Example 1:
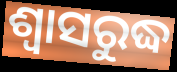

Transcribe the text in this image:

ଶ୍ୱାସରୁଦ୍ଧ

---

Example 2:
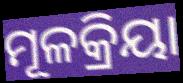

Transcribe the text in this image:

ମୂଳକ୍ରିୟା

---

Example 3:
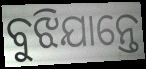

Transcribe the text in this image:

ବୁଝିଯାନ୍ତେ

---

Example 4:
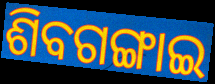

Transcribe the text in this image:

ଶିବଗଙ୍ଗାଇ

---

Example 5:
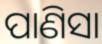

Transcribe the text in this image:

ପାଣିସା